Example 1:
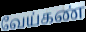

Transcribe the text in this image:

வேய்கண்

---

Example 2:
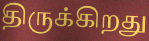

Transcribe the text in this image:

திருக்கிறது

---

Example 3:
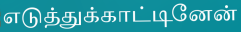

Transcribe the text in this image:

எடுத்துக்காட்டினேன்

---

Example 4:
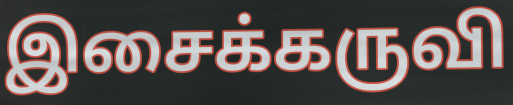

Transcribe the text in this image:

இசைக்கருவி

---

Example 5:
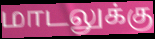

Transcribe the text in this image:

மாடலுக்கு